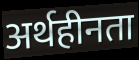
अर्थहीनता